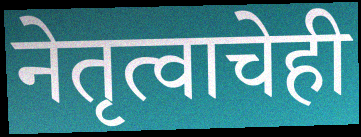
नेतृत्वाचेही